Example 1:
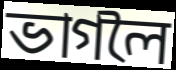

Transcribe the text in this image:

ভাগলৈ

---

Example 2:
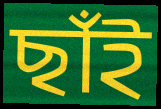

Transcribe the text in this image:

ছাঁই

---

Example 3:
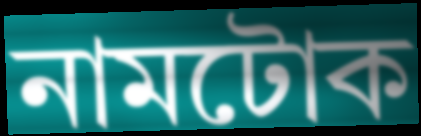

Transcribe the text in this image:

নামটোক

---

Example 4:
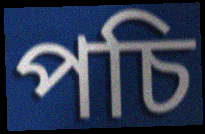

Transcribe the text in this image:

পচি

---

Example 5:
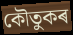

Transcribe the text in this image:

কৌতুকৰ